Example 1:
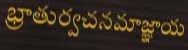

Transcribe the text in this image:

భ్రాతుర్వచనమాజ్ఞాయ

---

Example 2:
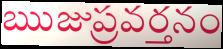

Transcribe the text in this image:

ఋజుప్రవర్తనం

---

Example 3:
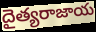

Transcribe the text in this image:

దైత్యరాజాయ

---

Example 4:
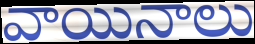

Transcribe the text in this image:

వాయినాలు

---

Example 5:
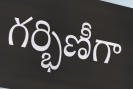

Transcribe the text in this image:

గర్భిణీగా